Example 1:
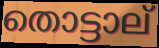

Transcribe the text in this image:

തൊട്ടാല്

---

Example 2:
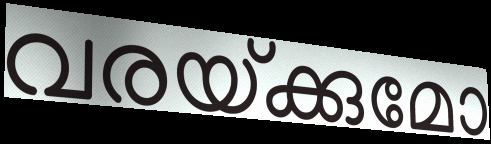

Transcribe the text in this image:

വരയ്‌ക്കുമോ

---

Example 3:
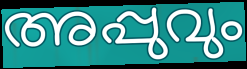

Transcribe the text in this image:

അപ്പുവും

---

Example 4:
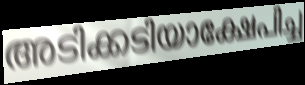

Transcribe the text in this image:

അടിക്കടിയാക്ഷേപിച്ച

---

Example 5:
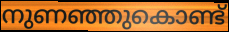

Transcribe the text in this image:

നുണഞ്ഞുകൊണ്ട്